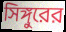
সিঙ্গুরের